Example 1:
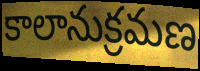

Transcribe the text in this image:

కాలానుక్రమణ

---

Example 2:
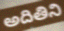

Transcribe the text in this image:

అదితిని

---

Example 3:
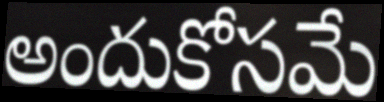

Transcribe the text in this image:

అందుకోసమే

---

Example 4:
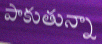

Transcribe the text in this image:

పాకుతున్నా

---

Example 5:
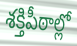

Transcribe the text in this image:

శక్తిపీఠాల్లో